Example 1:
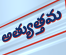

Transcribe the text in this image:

అత్యుత్తమ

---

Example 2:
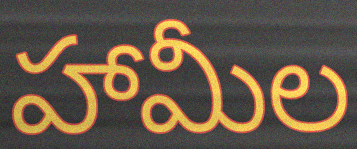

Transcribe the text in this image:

హామీల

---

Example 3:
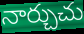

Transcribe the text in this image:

నార్చుచు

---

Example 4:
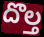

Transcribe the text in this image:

దొల్త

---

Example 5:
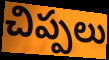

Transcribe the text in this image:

చిప్పలు